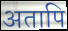
अतापि